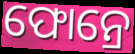
ଫୋନ୍ରେ